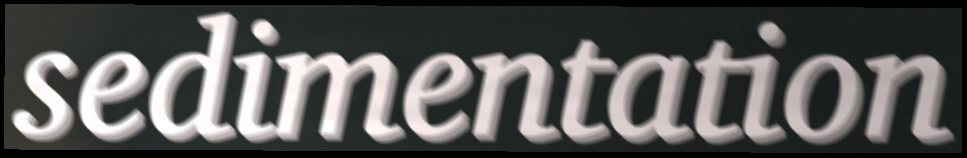
sedimentation